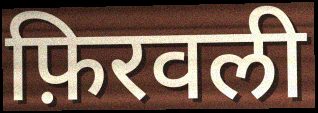
फ़िरवली